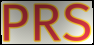
PRS